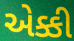
એક્કી